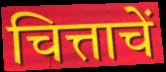
चित्ताचें